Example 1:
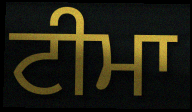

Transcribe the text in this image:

ਟੀਮਾ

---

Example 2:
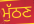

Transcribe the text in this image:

ਮੁੱਠਣ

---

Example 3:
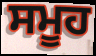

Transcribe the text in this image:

ਸਮੂਹ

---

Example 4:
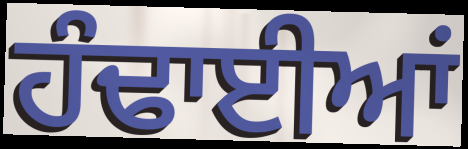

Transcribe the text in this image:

ਹੰਢਾਈਆਂ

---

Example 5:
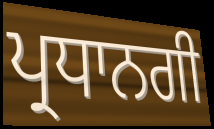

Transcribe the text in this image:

ਪ੍ਰਧਾਨਗੀ